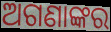
ଅଗଣାଙ୍କର